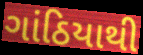
ગાંઠિયાથી